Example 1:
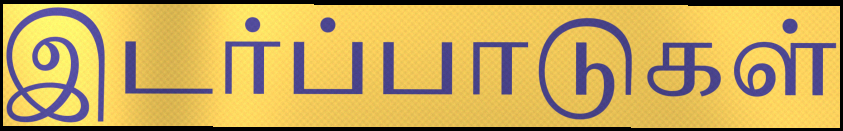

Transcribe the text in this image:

இடர்ப்பாடுகள்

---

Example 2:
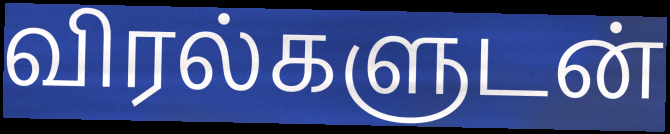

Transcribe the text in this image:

விரல்களுடன்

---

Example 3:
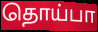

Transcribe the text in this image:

தொய்பா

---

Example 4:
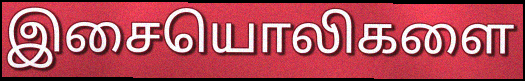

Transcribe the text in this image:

இசையொலிகளை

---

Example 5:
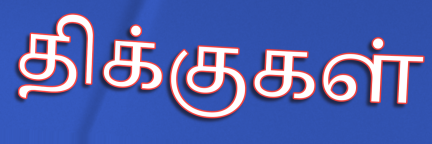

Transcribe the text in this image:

திக்குகள்